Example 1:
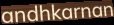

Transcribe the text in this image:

andhkarnan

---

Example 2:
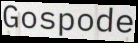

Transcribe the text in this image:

Gospode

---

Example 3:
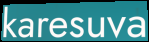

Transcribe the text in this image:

karesuva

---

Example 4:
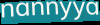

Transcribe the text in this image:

nannyya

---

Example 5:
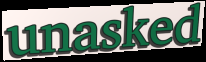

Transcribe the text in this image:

unasked